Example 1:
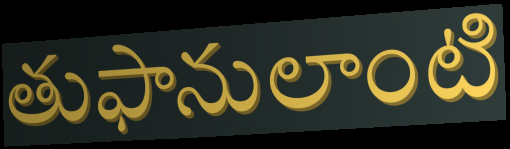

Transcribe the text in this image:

తుఫానులాంటి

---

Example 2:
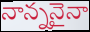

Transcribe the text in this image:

నాన్ననైనా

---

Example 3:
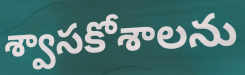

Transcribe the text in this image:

శ్వాసకోశాలను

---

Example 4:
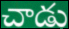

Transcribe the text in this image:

చాడు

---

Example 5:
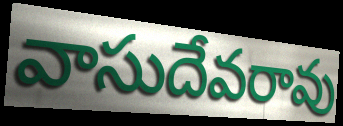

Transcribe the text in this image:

వాసుదేవరావు